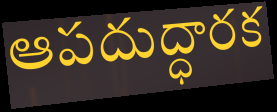
ఆపదుద్ధారక